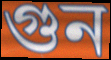
গুন